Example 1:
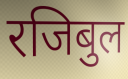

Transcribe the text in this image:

रजिबुल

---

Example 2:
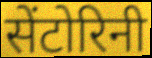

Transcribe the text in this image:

सेंटोरिनी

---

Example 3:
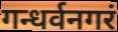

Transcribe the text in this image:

गन्धर्वनगरं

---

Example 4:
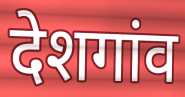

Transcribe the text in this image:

देशगांव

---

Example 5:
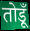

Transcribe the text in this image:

तोडूँ